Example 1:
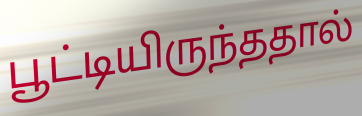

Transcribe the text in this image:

பூட்டியிருந்ததால்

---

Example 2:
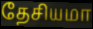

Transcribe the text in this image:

தேசியமா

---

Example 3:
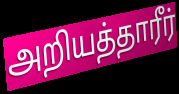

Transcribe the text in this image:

அறியத்தாரீர்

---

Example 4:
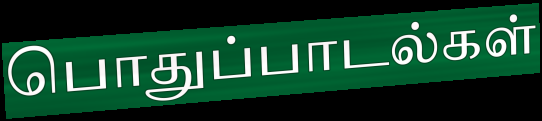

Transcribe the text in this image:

பொதுப்பாடல்கள்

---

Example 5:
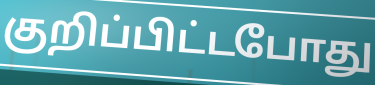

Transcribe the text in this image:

குறிப்பிட்டபோது